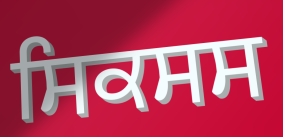
ਸਿਕਸਸ